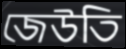
জেউতি